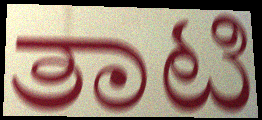
ತಾಟಿ